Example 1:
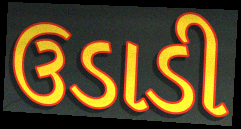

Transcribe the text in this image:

ઉડાડી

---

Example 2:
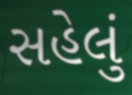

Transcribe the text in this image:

સહેલું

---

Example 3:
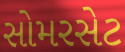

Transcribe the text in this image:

સોમરસેટ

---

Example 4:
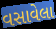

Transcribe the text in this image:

વસાવેલા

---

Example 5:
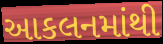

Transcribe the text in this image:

આકલનમાંથી